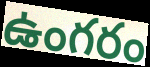
ఉంగరం